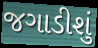
જગાડીશું